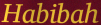
Habibah